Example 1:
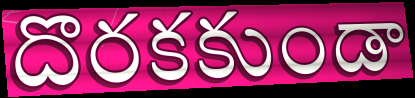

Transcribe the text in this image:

దొరకకుండా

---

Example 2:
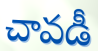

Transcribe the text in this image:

చావడీ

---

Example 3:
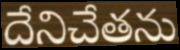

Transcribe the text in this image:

దేనిచేతను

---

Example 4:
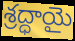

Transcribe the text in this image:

శ్రద్ధాయై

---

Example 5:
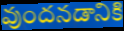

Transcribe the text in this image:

వుందనడానికి